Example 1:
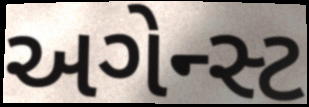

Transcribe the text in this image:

અગેન્સ્ટ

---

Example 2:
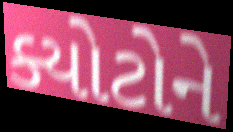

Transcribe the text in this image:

ક્યોટોને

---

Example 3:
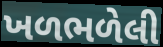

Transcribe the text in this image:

ખળભળેલી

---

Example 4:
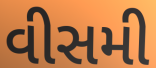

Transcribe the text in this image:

વીસમી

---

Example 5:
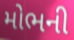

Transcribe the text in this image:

મોભની